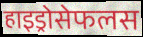
हाइड्रोसेफलस